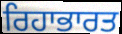
ਰਿਹਾਭਾਰਤ